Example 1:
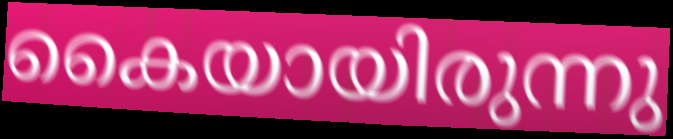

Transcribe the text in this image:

കൈയായിരുന്നു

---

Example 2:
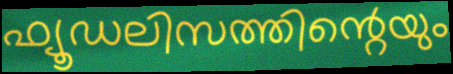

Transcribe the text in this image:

ഫ്യൂഡലിസത്തിന്റെയും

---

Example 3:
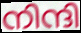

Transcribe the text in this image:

നിന്ദി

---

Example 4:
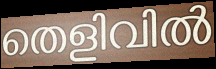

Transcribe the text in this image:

തെളിവിൽ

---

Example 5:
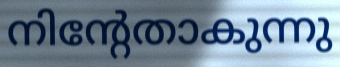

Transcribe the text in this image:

നിന്റേതാകുന്നു